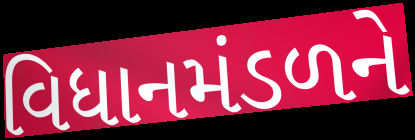
વિધાનમંડળને